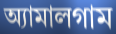
অ্যামালগাম